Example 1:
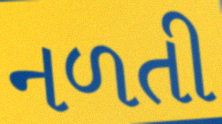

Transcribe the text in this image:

નળતી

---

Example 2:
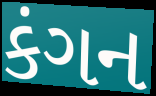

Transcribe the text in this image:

કંગન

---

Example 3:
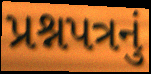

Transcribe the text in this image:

પ્રશ્નપત્રનું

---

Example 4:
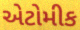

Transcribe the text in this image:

એટોમીક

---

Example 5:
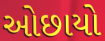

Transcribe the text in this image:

ઓછાયો